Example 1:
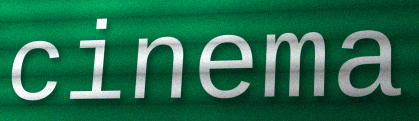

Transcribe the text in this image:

cinema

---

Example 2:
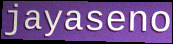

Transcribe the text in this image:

jayaseno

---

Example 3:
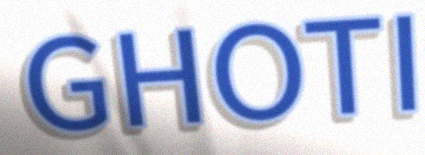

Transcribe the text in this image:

GHOTI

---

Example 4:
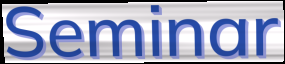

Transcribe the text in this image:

Seminar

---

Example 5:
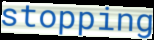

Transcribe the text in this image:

stopping